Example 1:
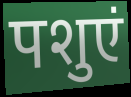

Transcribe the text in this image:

पशुएं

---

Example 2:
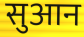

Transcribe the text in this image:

सुआन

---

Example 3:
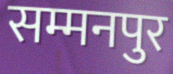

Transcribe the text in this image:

सम्मनपुर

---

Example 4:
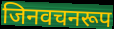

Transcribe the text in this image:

जिनवचनरूप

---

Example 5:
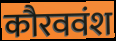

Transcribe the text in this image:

कौरववंश